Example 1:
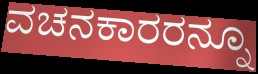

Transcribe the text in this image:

ವಚನಕಾರರನ್ನೂ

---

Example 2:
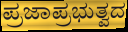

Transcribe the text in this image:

ಪ್ರಜಾಪ್ರಭುತ್ವದ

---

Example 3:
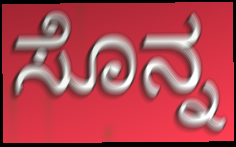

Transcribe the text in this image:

ಸೊನ್ನ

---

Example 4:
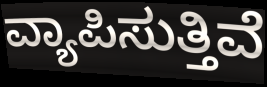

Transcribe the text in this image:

ವ್ಯಾಪಿಸುತ್ತಿವೆ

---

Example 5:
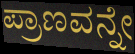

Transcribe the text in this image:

ಪ್ರಾಣವನ್ನೇ